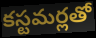
కస్టమర్లతో